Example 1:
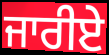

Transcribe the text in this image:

ਜਾਰੀਏ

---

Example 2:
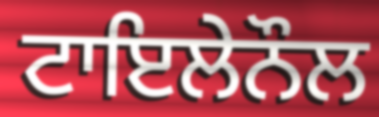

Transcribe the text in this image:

ਟਾਇਲੇਨੌਲ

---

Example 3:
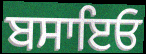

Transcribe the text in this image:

ਬਸਾਇਓ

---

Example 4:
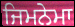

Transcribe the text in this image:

ਜਿਮਨੇਮਾ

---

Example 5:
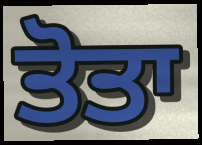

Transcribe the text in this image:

ਤੋਤਾ